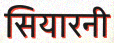
सियारनी